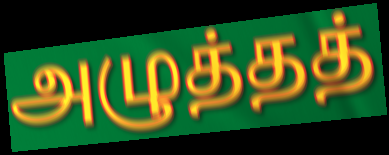
அழுத்தத்